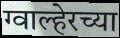
ग्वाल्हेरच्या